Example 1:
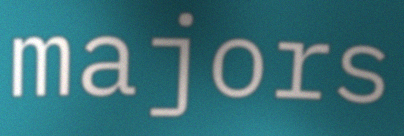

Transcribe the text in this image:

majors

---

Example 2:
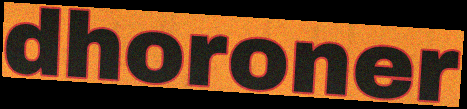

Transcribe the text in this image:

dhoroner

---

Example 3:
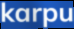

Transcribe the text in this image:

karpu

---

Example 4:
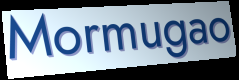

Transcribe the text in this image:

Mormugao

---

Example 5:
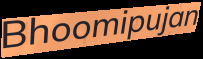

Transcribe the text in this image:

Bhoomipujan